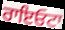
ਰਾਇਓਟਾ